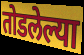
तोडलेल्या